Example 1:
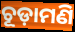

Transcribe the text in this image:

ଚୂଡ଼ାମଣି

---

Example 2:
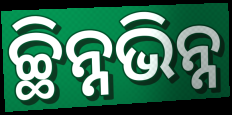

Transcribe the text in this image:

ଚ୍ଛିନ୍ନଭିନ୍ନ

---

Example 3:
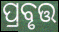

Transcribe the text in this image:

ପ୍ରବୃତ୍ତ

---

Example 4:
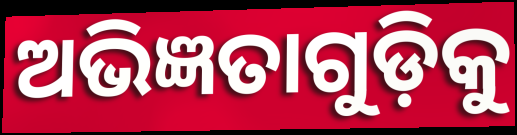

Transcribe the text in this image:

ଅଭିଜ୍ଞତାଗୁଡ଼ିକୁ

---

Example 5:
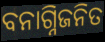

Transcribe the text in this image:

ବନାଗ୍ନିଜନିତ